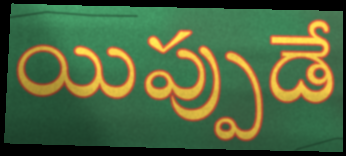
యిప్పుడే